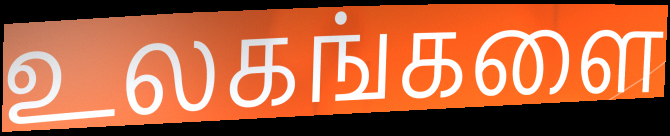
உலகங்களை